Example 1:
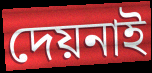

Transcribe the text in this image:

দেয়নাই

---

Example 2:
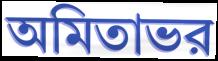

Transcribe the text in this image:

অমিতাভর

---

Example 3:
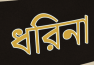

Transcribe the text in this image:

ধরিনা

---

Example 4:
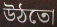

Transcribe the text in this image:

উঠতো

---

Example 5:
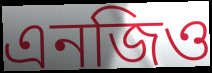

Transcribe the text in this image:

এনজিও